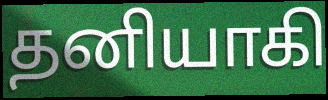
தனியாகி